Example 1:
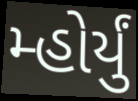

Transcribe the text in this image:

મ્હોર્યું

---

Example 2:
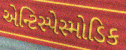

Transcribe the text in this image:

એન્ટિસ્પેસ્મોડિક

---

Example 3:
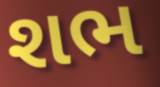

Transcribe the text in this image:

શભ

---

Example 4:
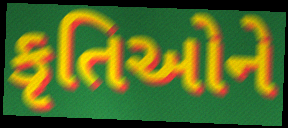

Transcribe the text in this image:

કૃતિઓને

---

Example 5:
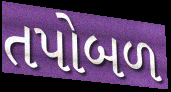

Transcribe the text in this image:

તપોબળ